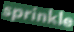
sprinkle